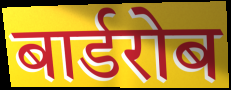
बार्डरोब